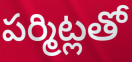
పర్మిట్లతో